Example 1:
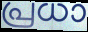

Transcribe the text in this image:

പ്രധാ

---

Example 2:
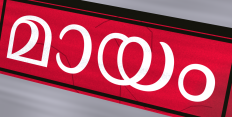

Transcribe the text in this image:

മായം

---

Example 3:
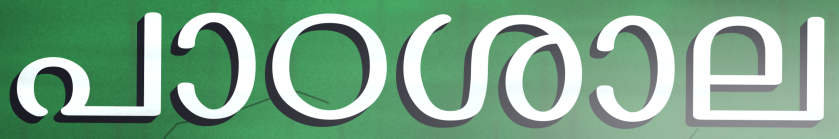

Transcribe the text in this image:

പാഠശാല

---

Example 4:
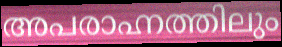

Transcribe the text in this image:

അപരാഹ്നത്തിലും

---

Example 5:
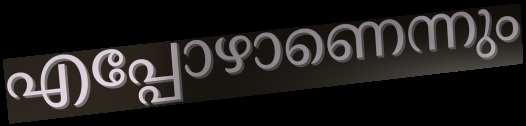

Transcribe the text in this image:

എപ്പോഴാണെന്നും